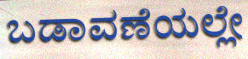
ಬಡಾವಣೆಯಲ್ಲೇ